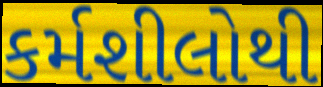
કર્મશીલોથી